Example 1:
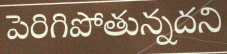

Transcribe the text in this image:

పెరిగిపోతున్నదని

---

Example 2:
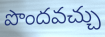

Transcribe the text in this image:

పొందవచ్చు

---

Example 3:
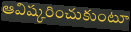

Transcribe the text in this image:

ఆవిష్కరించుకుంటూ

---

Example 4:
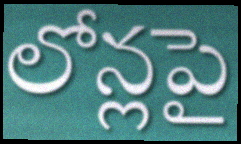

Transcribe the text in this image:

లోన్లపై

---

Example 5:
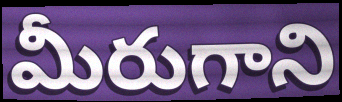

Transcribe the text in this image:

మీరుగాని